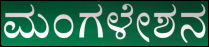
ಮಂಗಳೇಶನ